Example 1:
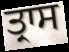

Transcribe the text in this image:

ਤ੍ਰਾਸ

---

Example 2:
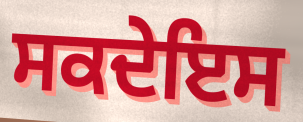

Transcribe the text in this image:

ਸਕਦੇਇਸ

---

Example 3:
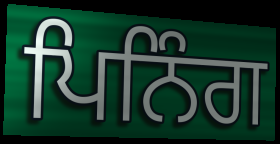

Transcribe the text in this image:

ਪਿਨਿੰਗ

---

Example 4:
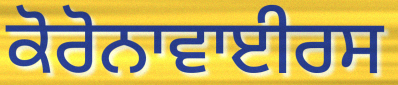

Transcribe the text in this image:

ਕੋਰੋਨਾਵਾਈਰਸ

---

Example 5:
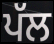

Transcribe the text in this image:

ਪੱਲ